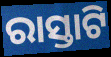
ରାସ୍ତାଟି